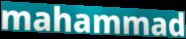
mahammad